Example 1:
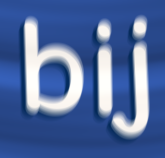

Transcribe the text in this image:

bij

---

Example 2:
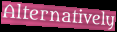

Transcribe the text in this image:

Alternatively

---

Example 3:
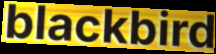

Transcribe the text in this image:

blackbird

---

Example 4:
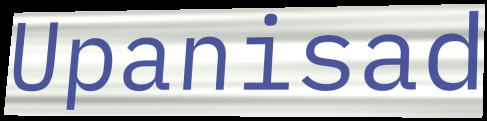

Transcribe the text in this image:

Upanisad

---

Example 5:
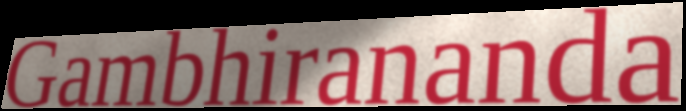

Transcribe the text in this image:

Gambhirananda